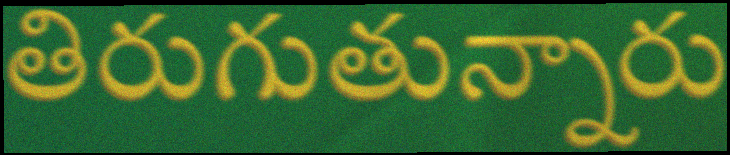
తిరుగుతున్నారు